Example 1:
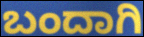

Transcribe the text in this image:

ಬಂದಾಗಿ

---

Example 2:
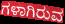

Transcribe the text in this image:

ಗಳಾಗಿರುವ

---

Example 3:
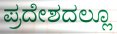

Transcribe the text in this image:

ಪ್ರದೇಶದಲ್ಲೂ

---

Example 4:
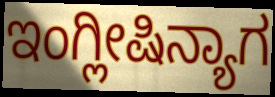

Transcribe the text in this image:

ಇಂಗ್ಲೀಷಿನ್ಯಾಗ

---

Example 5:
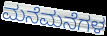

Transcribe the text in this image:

ಮನೆಮನೆಗಳ